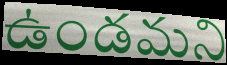
ఉండమని